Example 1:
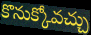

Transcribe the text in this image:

కొనుక్కోవచ్చు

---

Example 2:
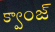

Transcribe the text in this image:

క్వాంజ్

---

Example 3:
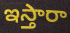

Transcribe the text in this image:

ఇస్తారా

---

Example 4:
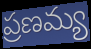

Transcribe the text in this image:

ప్రణమ్య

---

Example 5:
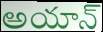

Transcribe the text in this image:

అయాన్